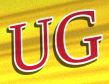
UG